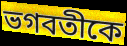
ভগবতীকে